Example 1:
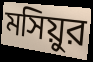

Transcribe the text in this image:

মসিয়ুর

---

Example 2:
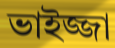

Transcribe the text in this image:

ভাইজ্জা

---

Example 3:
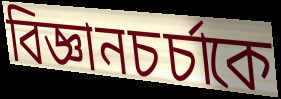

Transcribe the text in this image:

বিজ্ঞানচর্চাকে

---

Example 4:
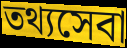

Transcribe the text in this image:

তথ্যসেবা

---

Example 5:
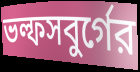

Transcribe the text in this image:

ভল্ফসবুর্গের